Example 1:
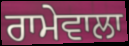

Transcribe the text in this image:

ਰਾਮੇਵਾਲਾ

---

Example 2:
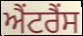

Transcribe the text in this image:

ਐਂਟਰੈਂਸ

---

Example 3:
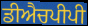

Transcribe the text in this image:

ਡੀਐਚਪੀਪੀ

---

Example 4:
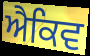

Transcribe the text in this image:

ਐਕਿਵ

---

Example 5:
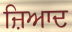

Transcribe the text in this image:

ਜ਼ਿਆਦ